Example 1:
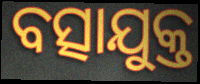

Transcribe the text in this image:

ବତ୍ସାଯୁକ୍ତ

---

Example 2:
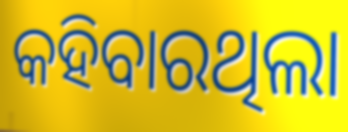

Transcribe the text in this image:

କହିବାରଥିଲା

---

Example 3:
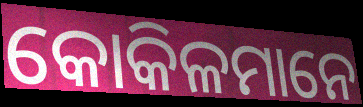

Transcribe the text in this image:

କୋକିଳମାନେ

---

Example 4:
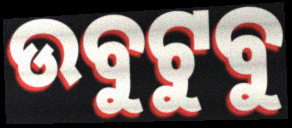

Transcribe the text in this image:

ଉବୁଟୁବୁ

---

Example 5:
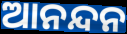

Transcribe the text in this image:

ଆନନ୍ଦନ